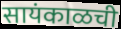
सायंकाळची